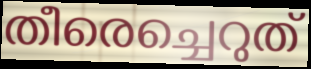
തീരെച്ചെറുത്